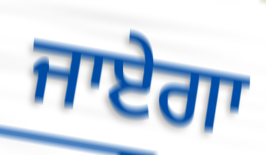
ਜਾਏਗਾ